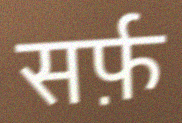
सर्फ़